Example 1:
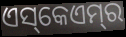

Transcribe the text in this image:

ଏସ୍‌କେଏମ୍‌ର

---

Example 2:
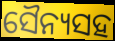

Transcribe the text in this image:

ସୈନ୍ୟସହ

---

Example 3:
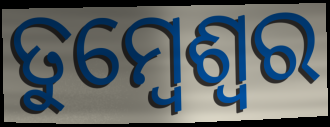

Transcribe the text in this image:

ତୁମ୍ବେଶ୍ଵର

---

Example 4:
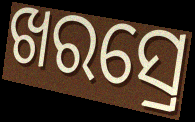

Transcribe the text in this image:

ଖରସ୍ରେ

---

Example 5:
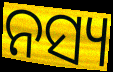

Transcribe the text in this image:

ନସ୍ୟ